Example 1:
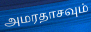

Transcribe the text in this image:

அமரதாசவும்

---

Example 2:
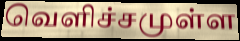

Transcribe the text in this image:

வெளிச்சமுள்ள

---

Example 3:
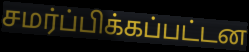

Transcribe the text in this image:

சமர்ப்பிக்கப்பட்டன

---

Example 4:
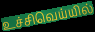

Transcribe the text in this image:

உச்சிவெய்யில்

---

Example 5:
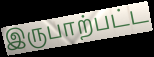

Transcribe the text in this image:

இருபாற்பட்ட